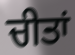
ਚੀਤਾਂ